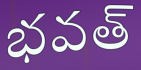
భవత్